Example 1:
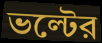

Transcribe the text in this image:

ভল্টের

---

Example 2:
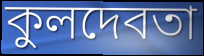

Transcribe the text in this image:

কুলদেবতা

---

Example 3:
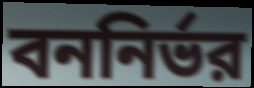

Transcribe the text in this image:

বননির্ভর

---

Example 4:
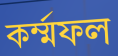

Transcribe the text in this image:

কর্ম্মফল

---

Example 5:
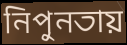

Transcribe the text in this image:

নিপুনতায়